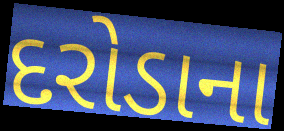
દરોડાના